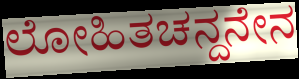
ಲೋಹಿತಚನ್ದನೇನ